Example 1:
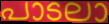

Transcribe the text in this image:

പാടലാ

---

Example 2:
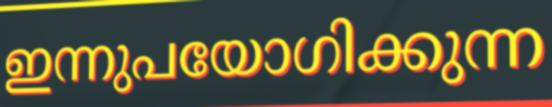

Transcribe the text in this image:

ഇന്നുപയോഗിക്കുന്ന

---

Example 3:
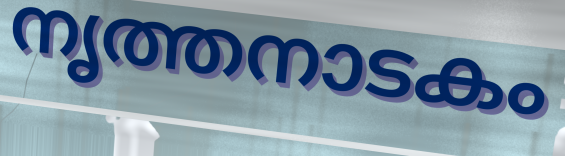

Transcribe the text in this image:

നൃത്തനാടകം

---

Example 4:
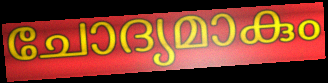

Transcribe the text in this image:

ചോദ്യമാകും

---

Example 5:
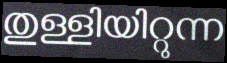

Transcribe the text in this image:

തുള്ളിയിറ്റുന്ന